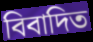
বিবাদিত